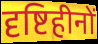
दृष्टिहीनों